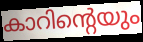
കാറിന്റെയും